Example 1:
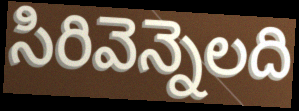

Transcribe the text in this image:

సిరివెన్నెలది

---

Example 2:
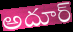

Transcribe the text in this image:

అదూర్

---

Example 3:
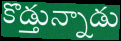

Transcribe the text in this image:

కొడ్తున్నాడు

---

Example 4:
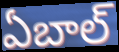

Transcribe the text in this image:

ఏబాల్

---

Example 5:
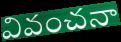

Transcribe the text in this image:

వివంచనా